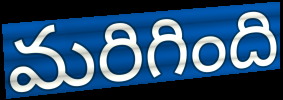
మరిగింది